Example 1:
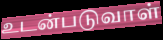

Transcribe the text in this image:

உடன்படுவாள்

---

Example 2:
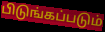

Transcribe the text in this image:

பிடுங்கப்படும்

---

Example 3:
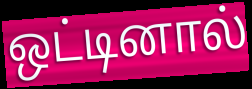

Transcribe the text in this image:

ஒட்டினால்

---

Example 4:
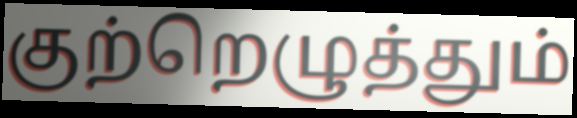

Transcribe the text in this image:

குற்றெழுத்தும்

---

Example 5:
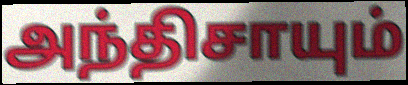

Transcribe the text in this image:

அந்திசாயும்